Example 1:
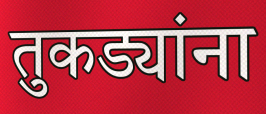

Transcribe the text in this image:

तुकड्यांना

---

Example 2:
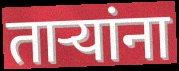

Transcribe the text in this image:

तार्‍यांना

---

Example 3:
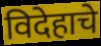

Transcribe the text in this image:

विदेहाचे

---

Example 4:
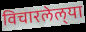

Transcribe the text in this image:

विचारलेल्या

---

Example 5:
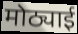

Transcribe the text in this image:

मोठ्याई